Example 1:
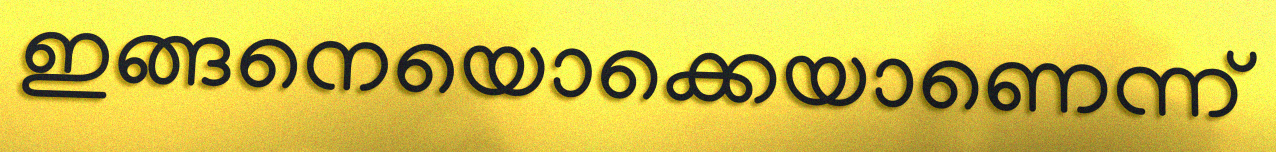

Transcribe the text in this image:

ഇങ്ങനെയൊക്കെയാണെന്ന്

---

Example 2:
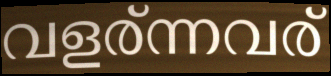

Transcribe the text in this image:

വളര്ന്നവര്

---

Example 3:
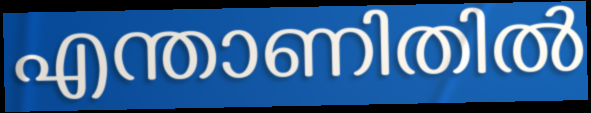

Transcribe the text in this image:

എന്താണിതിൽ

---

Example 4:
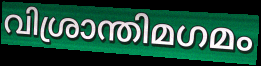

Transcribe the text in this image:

വിശ്രാന്തിമഗമം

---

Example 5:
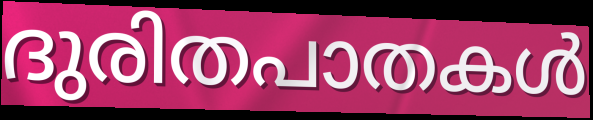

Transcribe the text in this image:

ദുരിതപാതകൾ